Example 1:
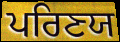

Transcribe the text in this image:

ਪਰਿਣਯ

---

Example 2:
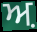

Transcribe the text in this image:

ਅ਼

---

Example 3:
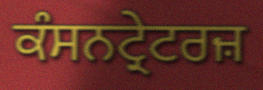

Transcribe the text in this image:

ਕੰਸਨਟ੍ਰੇਟਰਜ਼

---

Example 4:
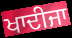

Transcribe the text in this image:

ਖਾਦੀਜਾ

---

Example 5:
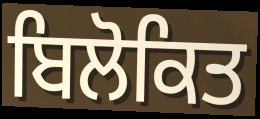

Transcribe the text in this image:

ਬਿਲੋਕਿਤ